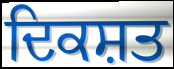
ਦਿਕਸ਼ਤ